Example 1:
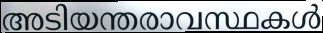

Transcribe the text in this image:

അടിയന്തരാവസ്ഥകൾ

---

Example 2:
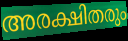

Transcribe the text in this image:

അരക്ഷിതരും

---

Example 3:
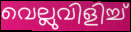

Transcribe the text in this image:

വെല്ലുവിളിച്ച്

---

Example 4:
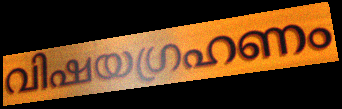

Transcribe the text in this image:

വിഷയഗ്രഹണം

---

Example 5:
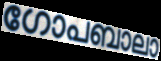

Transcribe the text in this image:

ഗോപബാലാ